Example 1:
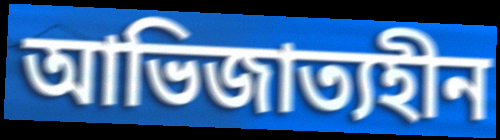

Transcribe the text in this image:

আভিজাত্যহীন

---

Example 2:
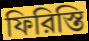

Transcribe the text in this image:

ফিরিস্তি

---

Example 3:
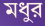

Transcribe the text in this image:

মধুর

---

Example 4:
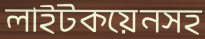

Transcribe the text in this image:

লাইটকয়েনসহ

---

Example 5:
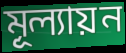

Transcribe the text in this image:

মূল্যায়ন